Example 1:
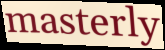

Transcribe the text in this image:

masterly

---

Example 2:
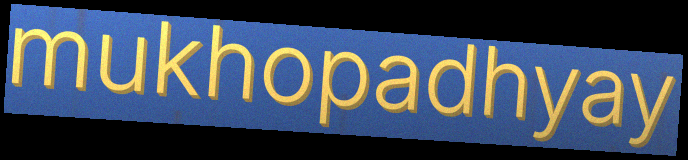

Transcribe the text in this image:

mukhopadhyay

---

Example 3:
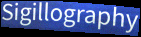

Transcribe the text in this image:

Sigillography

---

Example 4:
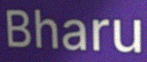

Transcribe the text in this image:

Bharu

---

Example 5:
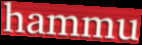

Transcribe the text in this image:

hammu